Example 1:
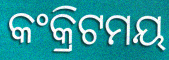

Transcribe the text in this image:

କଂକ୍ରିଟମୟ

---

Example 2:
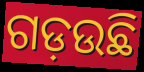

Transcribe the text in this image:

ଗଡ଼ଉଛି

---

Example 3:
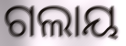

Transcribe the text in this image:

ଗଲାୟ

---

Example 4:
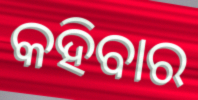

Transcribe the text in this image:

କହିବାର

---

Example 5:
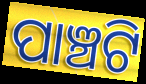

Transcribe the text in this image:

ପାଞ୍ଚଟି